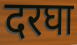
दरघा